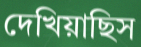
দেখিয়াছিস